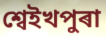
শ্বেইখপুৰা